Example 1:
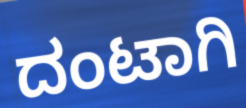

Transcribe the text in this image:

ದಂಟಾಗಿ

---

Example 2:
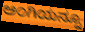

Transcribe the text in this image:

ಅಂಗಿಯನ್ನೂ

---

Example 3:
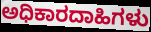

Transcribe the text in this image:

ಅಧಿಕಾರದಾಹಿಗಳು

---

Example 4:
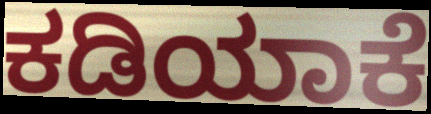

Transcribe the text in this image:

ಕಡಿಯಾಕೆ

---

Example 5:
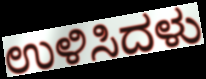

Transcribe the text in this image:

ಉಳಿಸಿದಳು